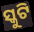
ସ୍କୁଟି